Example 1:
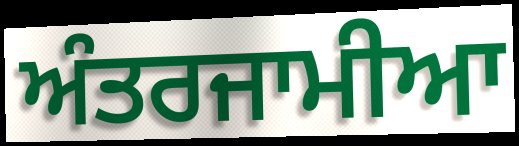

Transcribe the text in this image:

ਅੰਤਰਜਾਮੀਆ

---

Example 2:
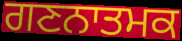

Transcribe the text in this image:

ਗਣਨਾਤਮਕ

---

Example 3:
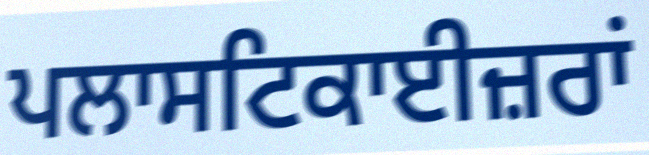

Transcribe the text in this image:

ਪਲਾਸਟਿਕਾਈਜ਼ਰਾਂ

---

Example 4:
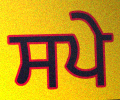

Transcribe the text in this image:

ਸਪੇ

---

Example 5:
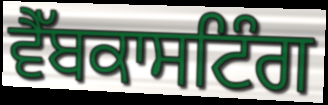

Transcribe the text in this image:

ਵੈੱਬਕਾਸਟਿੰਗ